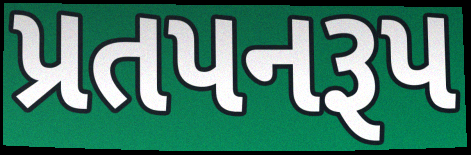
પ્રતપનરૂપ